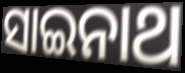
ସାଇନାଥ